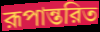
রূপান্তরিত